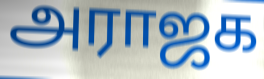
அராஜக